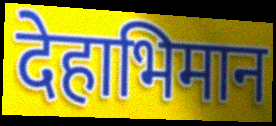
देहाभिमान